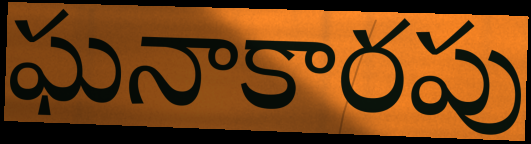
ఘనాకారపు